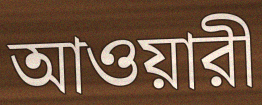
আওয়ারী